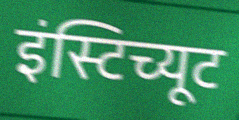
इंस्टिच्यूट